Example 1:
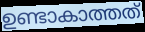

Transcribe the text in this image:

ഉണ്ടാകാത്തത്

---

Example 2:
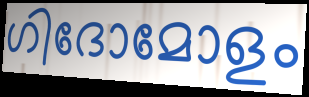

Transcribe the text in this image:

ഗിദോമോളം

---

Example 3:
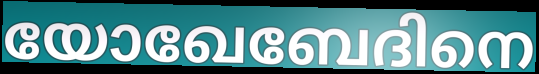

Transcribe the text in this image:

യോഖേബേദിനെ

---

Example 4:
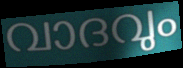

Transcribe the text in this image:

വാദവും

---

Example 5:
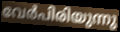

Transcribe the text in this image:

വേർപിരിയുന്നു